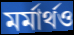
মর্মার্থও